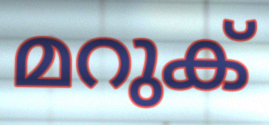
മറുക്